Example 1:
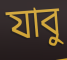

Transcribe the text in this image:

যাবু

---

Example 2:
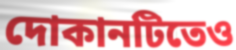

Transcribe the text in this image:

দোকানটিতেও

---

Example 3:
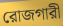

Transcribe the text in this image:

রোজগারী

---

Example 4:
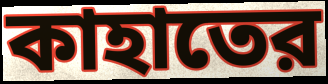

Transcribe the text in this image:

কাহাতের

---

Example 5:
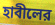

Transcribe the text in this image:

হাবীলের